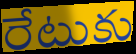
రేటుకు